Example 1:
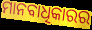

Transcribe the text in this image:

ମାନବାଧିକାରର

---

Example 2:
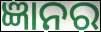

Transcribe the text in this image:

ଜ୍ଞାନର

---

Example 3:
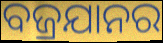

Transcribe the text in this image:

ବଜ୍ରଯାନର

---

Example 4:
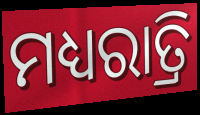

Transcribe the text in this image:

ମଧ୍ୟରାତ୍ରି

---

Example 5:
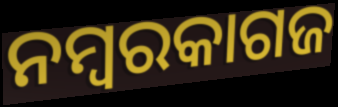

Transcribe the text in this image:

ନମ୍ବରକାଗଜ